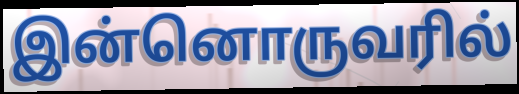
இன்னொருவரில்